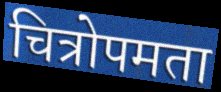
चित्रोपमता